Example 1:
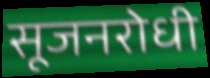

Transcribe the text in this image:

सूजनरोधी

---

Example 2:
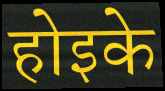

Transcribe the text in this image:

होइके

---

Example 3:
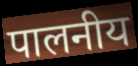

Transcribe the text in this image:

पालनीय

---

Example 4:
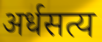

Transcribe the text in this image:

अर्धसत्य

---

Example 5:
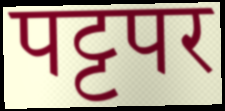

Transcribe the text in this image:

पट्टपर